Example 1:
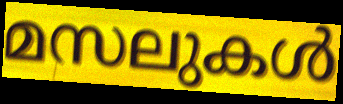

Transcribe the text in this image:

മസലുകൾ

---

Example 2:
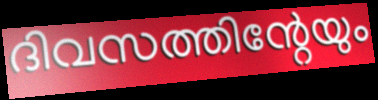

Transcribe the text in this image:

ദിവസത്തിന്റേയും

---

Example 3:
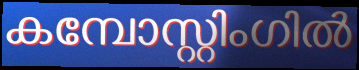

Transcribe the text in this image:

കമ്പോസ്റ്റിംഗിൽ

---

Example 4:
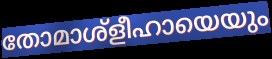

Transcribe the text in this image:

തോമാശ്ളീഹായെയും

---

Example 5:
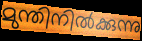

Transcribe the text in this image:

മുന്തിനിൽക്കുന്നു